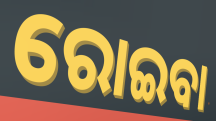
ରୋଇବା